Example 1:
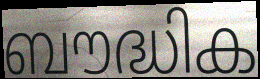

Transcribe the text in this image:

ബൗദ്ധിക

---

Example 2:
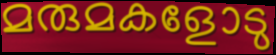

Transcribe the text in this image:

മരുമകളോടു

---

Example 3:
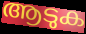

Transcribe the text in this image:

ആടുക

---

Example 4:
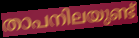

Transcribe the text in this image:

താപനിലയുണ്ട്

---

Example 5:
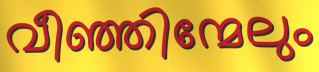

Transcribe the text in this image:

വീഞ്ഞിന്മേലും